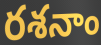
రశనాం